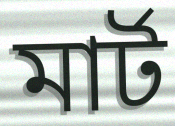
মার্ট